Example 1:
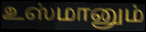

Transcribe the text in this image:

உஸ்மானும்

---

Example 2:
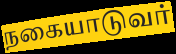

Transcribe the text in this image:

நகையாடுவர்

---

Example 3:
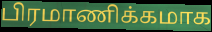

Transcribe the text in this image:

பிரமாணிக்கமாக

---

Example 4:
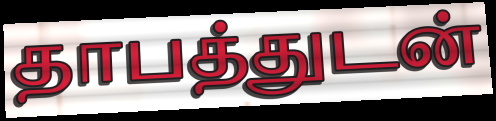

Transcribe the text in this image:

தாபத்துடன்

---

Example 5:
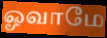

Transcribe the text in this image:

ஓவாமே